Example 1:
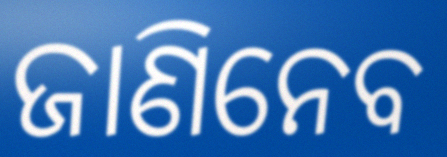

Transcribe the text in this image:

ଜାଣିନେବ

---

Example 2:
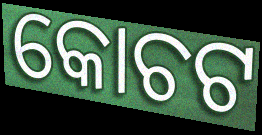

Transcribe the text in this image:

କୋଚଟ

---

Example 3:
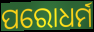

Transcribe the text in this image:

ପରୋଧର୍ମ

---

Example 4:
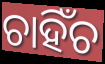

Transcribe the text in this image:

ଚାହିଁଚ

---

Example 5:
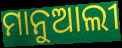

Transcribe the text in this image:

ମାନୁଆଲୀ